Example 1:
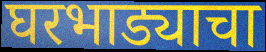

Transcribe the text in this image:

घरभाड्याचा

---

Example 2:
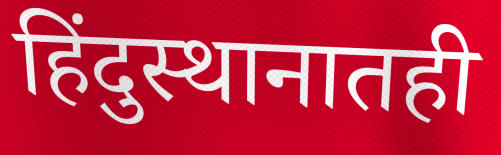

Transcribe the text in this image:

हिंदुस्थानातही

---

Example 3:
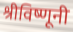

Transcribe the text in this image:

श्रीविष्णूनी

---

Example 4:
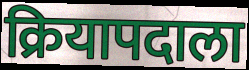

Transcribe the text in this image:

क्रियापदाला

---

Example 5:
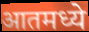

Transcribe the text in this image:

आतमध्ये